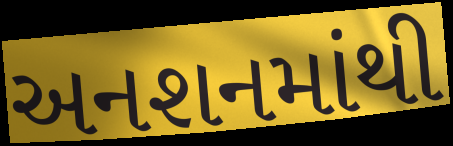
અનશનમાંથી